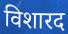
विशारद